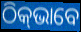
ଠିକ୍‌ଭାବେ